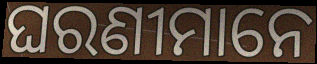
ଘରଣୀମାନେ